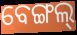
ବେଙ୍ଗଲ୍